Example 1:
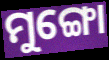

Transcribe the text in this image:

ମୁଙ୍ଗୋ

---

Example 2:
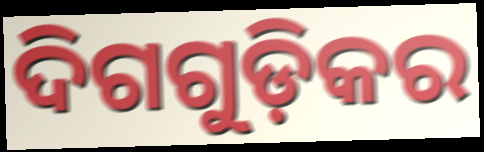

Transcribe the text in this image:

ଦିଗଗୁଡ଼ିକର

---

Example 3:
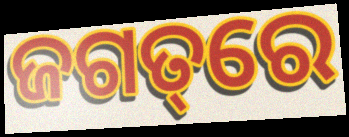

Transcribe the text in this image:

ଜଗତ୍‌ରେ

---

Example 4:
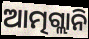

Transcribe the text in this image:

ଆତ୍ମଗ୍ଲାନି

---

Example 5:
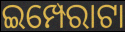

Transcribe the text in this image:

ଇମ୍ପେରାଟା